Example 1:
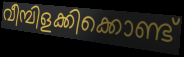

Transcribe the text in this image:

വീമ്പിളക്കിക്കൊണ്ട്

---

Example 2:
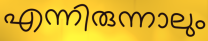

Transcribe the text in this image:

എന്നിരുന്നാലും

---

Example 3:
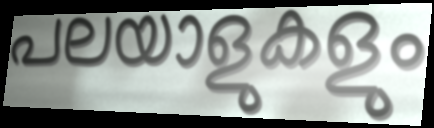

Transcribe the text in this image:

പലയാളുകളും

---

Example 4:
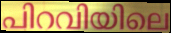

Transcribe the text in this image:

പിറവിയിലെ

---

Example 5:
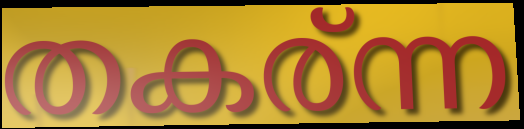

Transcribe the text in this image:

തകര്ന്ന